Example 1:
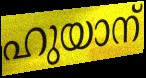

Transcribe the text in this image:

ഹുയാന്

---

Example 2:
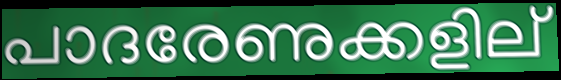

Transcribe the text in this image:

പാദരേണുക്കളില്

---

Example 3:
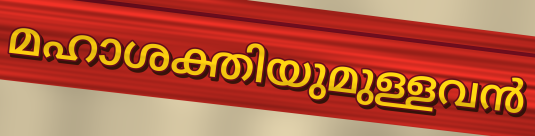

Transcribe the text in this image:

മഹാശക്തിയുമുള്ളവൻ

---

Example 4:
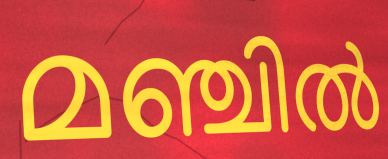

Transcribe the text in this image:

മഞ്ചിൽ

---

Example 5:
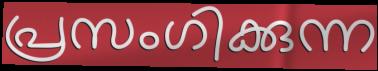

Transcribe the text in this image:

പ്രസംഗിക്കുന്ന